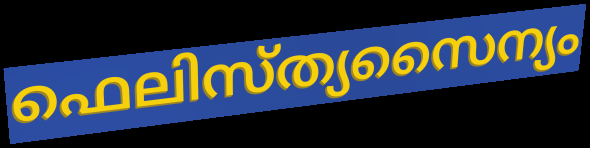
ഫെലിസ്ത്യസൈന്യം